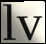
lv